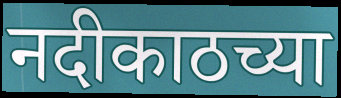
नदीकाठच्या